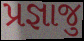
પ્રજ્ઞાજુ